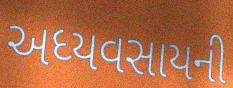
અધ્યવસાયની